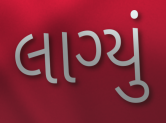
લાગ્યું